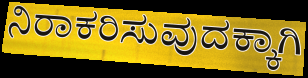
ನಿರಾಕರಿಸುವುದಕ್ಕಾಗಿ